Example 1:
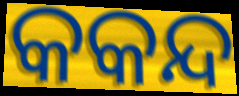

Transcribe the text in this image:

କକନ୍ଦ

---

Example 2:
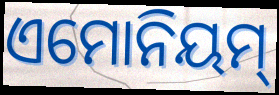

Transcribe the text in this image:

ଏମୋନିୟମ୍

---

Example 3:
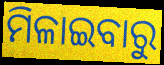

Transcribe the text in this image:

ମିଳାଇବାରୁ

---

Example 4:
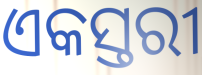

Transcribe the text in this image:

ଏକସ୍ତରୀ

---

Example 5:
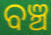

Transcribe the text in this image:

ବଞ୍ଚ